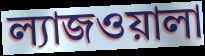
ল্যাজওয়ালা